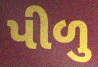
પીળુ